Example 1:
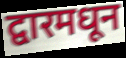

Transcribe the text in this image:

द्वारमधून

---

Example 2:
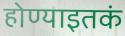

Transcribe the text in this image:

होण्याइतकं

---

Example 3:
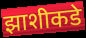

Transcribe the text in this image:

झाशीकडे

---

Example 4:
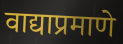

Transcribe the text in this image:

वाद्याप्रमाणे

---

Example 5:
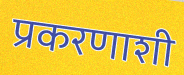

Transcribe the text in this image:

प्रकरणाशी